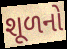
શૂળનો